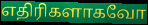
எதிரிகளாகவோ